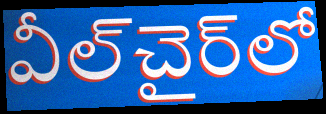
వీల్‌చైర్‌లో